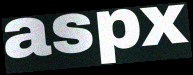
aspx